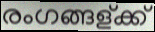
രംഗങ്ങള്ക്ക്